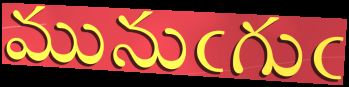
మునుఁగుఁ